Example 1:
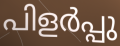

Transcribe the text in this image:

പിളർപ്പു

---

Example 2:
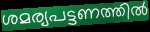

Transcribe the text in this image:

ശമര്യപട്ടണത്തിൽ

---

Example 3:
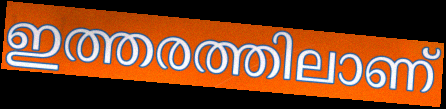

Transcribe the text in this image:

ഇത്തരത്തിലാണ്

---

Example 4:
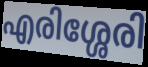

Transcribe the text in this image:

എരിശ്ശേരി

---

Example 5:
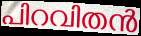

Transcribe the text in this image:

പിറവിതൻ